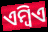
ଏମ୍ବିଏ